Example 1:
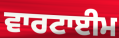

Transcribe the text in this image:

ਵਾਰਟਾਈਮ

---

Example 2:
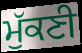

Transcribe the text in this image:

ਮੁੱਕਣੀ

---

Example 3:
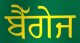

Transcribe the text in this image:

ਬੈੱਗੇਜ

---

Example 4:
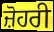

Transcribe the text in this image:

ਜ਼ੋਹਰੀ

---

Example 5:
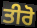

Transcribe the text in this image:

ਤੀਰੋ